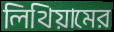
লিথিয়ামের